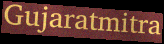
Gujaratmitra